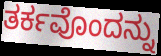
ತರ್ಕವೊಂದನ್ನು